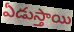
ఏడుస్తాయి